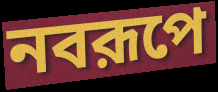
নবরূপে